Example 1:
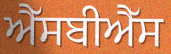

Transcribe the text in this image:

ਐੱਸਬੀਐੱਸ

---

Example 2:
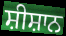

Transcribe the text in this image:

ਸ਼ੀਸ਼ਾਨ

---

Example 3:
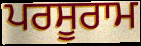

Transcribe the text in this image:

ਪਰਸੂਰਾਮ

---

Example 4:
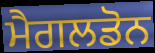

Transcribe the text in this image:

ਮੈਗਲਡੋਨ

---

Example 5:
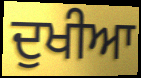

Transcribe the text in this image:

ਦੁਖੀਆ